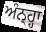
ਅੰਨ੍ਹ੍ਹਾ